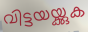
വിട്ടയയ്ക്കുക